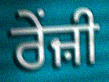
ਰੇਂਜ਼ੀ